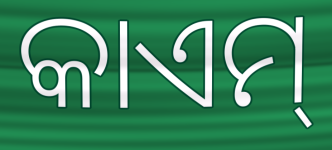
କାଏମ୍